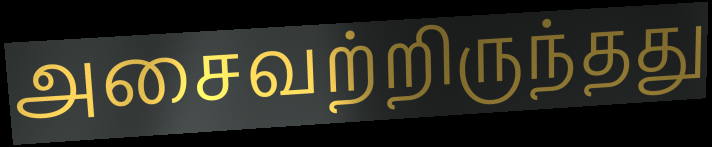
அசைவற்றிருந்தது